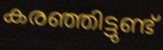
കരഞ്ഞിട്ടുണ്ട്